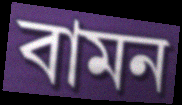
বামন